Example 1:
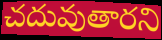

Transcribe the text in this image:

చదువుతారని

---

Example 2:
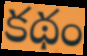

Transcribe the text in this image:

కథం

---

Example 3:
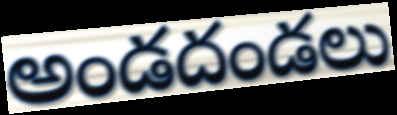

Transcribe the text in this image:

అండదండలు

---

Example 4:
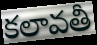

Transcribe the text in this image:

కలావతీ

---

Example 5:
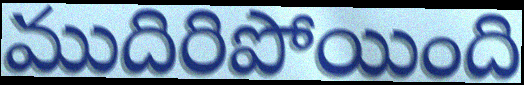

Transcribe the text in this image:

ముదిరిపోయింది